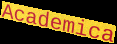
Academica